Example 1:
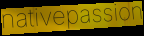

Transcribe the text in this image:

nativepassion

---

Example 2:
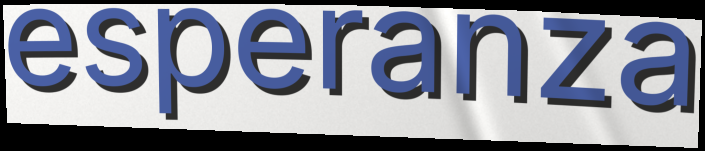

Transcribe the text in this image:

esperanza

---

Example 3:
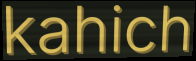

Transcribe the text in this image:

kahich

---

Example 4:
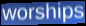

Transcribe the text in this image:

worships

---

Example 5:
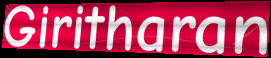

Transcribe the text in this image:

Giritharan